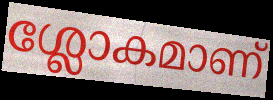
ശ്ലോകമാണ്